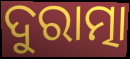
ଦୁରାତ୍ମା